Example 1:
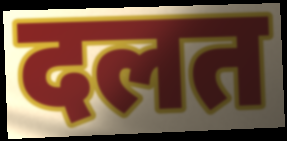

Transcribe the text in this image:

दलत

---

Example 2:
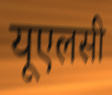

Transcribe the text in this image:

यूएलसी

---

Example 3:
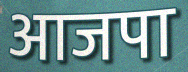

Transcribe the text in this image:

आजपा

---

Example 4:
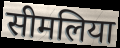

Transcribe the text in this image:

सीमलिया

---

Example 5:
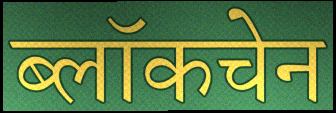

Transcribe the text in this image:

ब्लॉकचेन